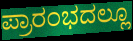
ಪ್ರಾರಂಭದಲ್ಲೂ